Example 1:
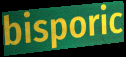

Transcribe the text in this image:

bisporic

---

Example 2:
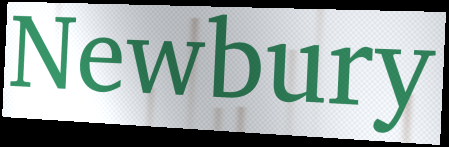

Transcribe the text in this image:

Newbury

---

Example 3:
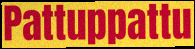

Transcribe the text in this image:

Pattuppattu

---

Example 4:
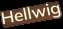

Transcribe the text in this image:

Hellwig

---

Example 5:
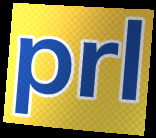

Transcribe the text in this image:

prl